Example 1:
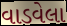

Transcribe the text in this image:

વાડવેલા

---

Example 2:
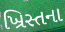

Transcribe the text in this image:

ખ્રિસ્તના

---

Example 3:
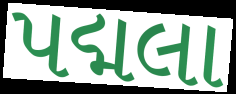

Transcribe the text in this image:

પદ્મલા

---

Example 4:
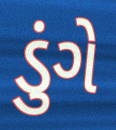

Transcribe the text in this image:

ડુંગે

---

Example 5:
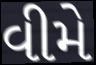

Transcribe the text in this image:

વીમે